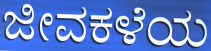
ಜೀವಕಳೆಯ